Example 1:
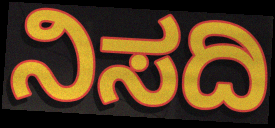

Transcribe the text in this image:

ನಿಸದಿ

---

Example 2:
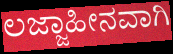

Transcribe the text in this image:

ಲಜ್ಜಾಹೀನವಾಗಿ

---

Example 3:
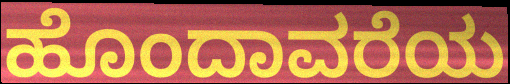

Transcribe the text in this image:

ಹೊಂದಾವರೆಯ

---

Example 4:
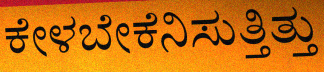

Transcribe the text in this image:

ಕೇಳಬೇಕೆನಿಸುತ್ತಿತ್ತು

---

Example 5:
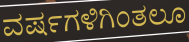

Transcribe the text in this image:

ವರ್ಷಗಳಿಗಿಂತಲೂ